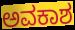
ಅವಕಾಶ